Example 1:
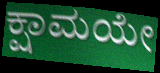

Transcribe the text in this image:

ಕ್ಷಾಮಯೇ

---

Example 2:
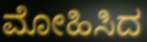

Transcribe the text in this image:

ಮೋಹಿಸಿದ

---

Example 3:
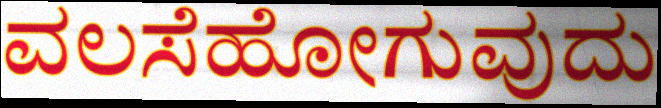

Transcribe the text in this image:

ವಲಸೆಹೋಗುವುದು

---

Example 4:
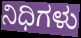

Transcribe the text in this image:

ನಿಧಿಗಳು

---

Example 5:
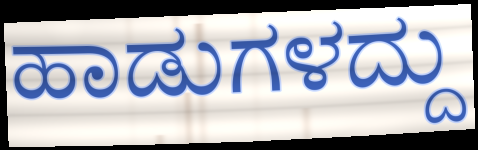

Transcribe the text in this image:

ಹಾಡುಗಳದ್ದು